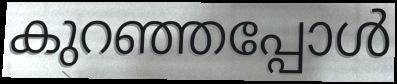
കുറഞ്ഞപ്പോൾ